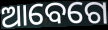
ଆବେଗେ